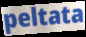
peltata